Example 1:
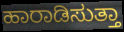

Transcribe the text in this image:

ಹಾರಾಡಿಸುತ್ತಾ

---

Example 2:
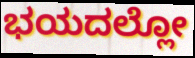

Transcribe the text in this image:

ಭಯದಲ್ಲೋ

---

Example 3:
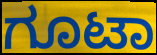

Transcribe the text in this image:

ಗೂಟಾ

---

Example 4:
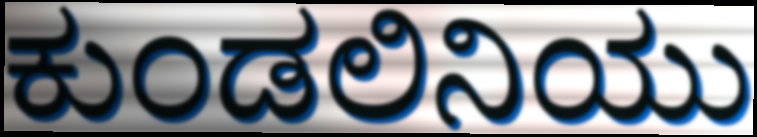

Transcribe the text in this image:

ಕುಂಡಲಿನಿಯು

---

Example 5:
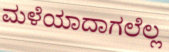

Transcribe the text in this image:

ಮಳೆಯಾದಾಗಲೆಲ್ಲ